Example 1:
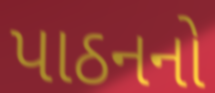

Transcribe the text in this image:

પાઠનનો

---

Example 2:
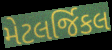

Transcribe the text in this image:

મેટલર્જિકલ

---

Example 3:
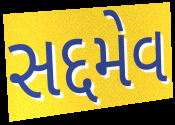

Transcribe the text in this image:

સદ્દમેવ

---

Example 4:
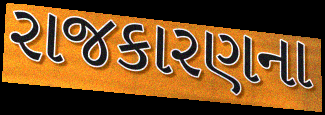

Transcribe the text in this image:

રાજકારણના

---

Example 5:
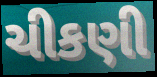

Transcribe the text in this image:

ચીકણી